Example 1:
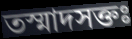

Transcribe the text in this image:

তস্মাদসক্তঃ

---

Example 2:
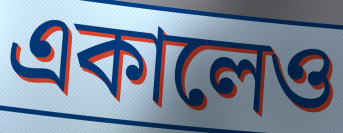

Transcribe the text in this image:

একালেও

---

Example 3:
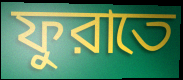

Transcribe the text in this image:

ফুরাতে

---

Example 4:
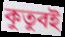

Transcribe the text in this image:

কুতুবই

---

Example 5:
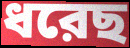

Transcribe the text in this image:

ধরেছ